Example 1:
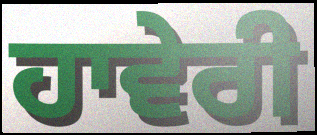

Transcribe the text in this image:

ਹਾਵੇਰੀ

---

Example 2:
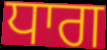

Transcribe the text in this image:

ਧਾਗ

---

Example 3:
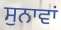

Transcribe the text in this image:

ਸੁਨਾਵਾਂ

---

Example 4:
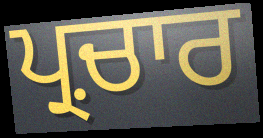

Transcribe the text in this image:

ਪ਼੍ਰਚਾਰ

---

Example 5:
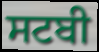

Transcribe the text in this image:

ਸਟਬੀ